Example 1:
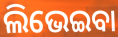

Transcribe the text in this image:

ଲିଭେଇବା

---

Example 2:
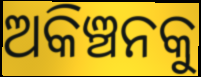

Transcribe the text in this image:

ଅକିଞ୍ଚନକୁ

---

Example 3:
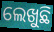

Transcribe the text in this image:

ଲେଖୁଛି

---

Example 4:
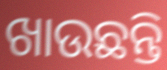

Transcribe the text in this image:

ଖାଉଛନ୍ତି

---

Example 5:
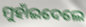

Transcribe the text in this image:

ମୁହାଁଇଦେଲେ